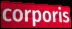
corporis